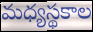
మధ్యస్థకాల